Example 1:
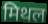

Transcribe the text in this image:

मिथल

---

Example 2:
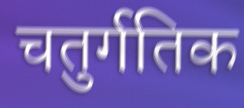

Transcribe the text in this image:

चतुर्गतिक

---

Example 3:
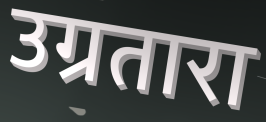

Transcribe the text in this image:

उग्रतारा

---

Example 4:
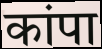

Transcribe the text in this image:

कांपा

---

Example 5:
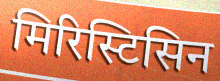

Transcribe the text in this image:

मिरिस्टिसिन